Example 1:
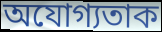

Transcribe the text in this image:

অযোগ্যতাক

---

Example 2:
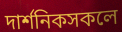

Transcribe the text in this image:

দাৰ্শনিকসকলে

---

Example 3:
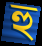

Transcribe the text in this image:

হু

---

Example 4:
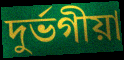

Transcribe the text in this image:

দুৰ্ভগীয়া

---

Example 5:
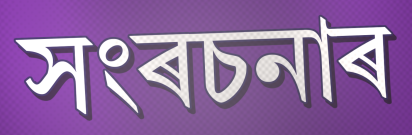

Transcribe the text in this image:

সংৰচনাৰ